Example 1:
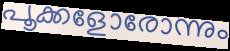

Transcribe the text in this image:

പൂക്കളോരോന്നും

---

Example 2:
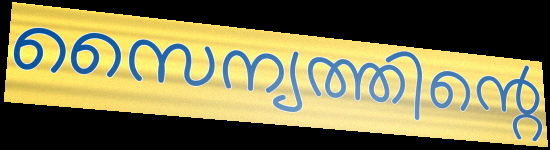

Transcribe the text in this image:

സൈന്യത്തിന്റെ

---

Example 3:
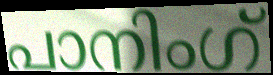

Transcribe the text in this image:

പാനിംഗ്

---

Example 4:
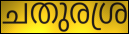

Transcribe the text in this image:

ചതുരശ്ര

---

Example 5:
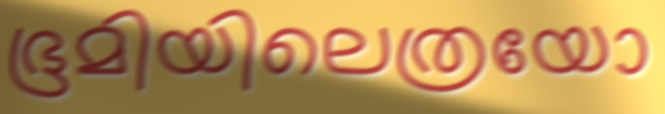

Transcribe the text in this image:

ഭൂമിയിലെത്രയോ